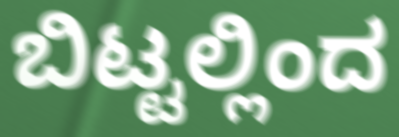
ಬಿಟ್ಟಲ್ಲಿಂದ